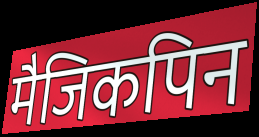
मैजिकपिन